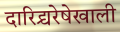
दारिद्र्यरेषेखाली